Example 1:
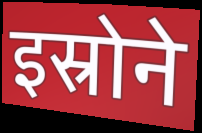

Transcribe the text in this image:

इस्रोने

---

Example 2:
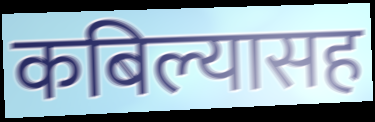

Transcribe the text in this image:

कबिल्यासह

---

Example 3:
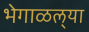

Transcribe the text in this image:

भेगाळल्या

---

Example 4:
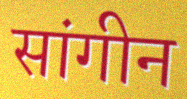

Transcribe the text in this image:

सांगीन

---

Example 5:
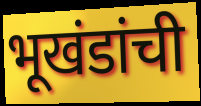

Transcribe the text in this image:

भूखंडांची